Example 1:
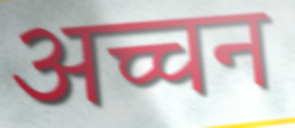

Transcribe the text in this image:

अच्चन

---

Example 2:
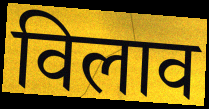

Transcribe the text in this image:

विलाव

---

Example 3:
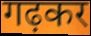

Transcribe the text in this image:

गढ़कर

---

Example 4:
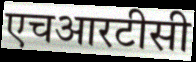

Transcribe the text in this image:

एचआरटीसी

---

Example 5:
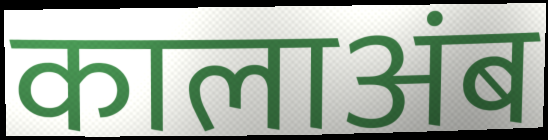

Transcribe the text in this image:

कालाअंब